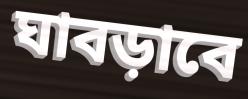
ঘাবড়াবে